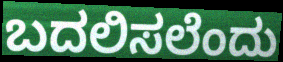
ಬದಲಿಸಲೆಂದು